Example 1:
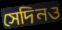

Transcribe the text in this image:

সেদিনও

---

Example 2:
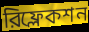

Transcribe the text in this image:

রিফ্লেকশন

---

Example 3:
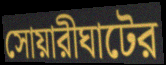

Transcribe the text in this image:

সোয়ারীঘাটের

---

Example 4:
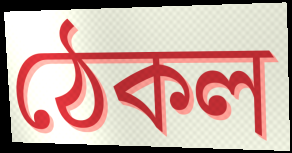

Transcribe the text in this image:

ঠেকল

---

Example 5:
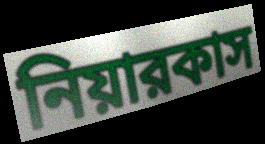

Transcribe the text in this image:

নিয়ারকাস